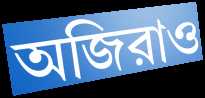
অজিরাও